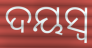
ଦୟସ୍ଵ